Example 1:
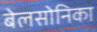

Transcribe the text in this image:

बेलसोनिका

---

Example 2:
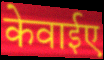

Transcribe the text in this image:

केवाईए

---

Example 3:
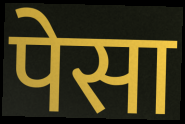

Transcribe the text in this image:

पेसा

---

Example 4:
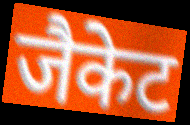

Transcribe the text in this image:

जैकेट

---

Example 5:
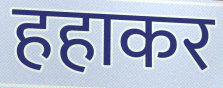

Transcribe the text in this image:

हहाकर